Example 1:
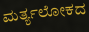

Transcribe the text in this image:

ಮರ್ತ್ಯಲೋಕದ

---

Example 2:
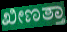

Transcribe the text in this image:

ಖೀಣತ್ತಾ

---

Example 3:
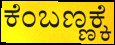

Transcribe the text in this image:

ಕೆಂಬಣ್ಣಕ್ಕೆ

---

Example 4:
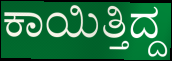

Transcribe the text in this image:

ಕಾಯಿತ್ತಿದ್ದ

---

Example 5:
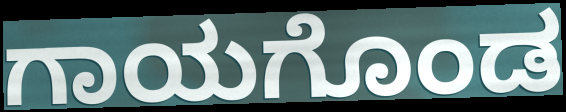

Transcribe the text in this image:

ಗಾಯಗೊಂಡ